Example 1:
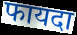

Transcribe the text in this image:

फायदा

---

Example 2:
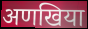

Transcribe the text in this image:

अणखिया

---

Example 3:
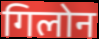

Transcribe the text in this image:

गिलोन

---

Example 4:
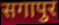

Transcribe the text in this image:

सगापुर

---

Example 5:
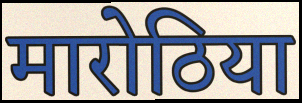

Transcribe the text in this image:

मारोठिया